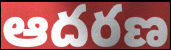
ఆదరణ